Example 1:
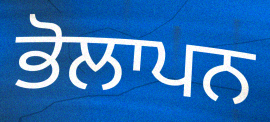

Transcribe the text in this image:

ਭੋਲਾਪਨ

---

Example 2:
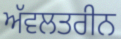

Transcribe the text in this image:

ਅੱਵਲਤਰੀਨ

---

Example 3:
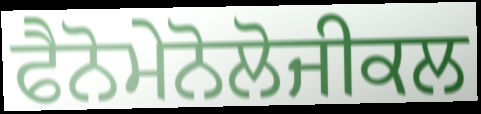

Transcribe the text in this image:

ਫੈਨੋਮੇਨੋਲੋਜੀਕਲ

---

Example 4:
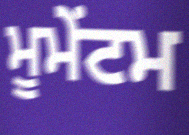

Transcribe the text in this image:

ਮੂਮੇਂਟਮ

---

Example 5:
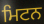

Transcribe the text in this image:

ਮਿਟਨ